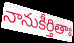
నానుకీర్తితాః